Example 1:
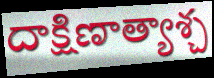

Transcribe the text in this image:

దాక్షిణాత్యాశ్చ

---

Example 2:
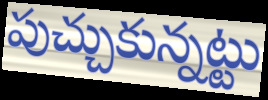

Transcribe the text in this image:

పుచ్చుకున్నట్టు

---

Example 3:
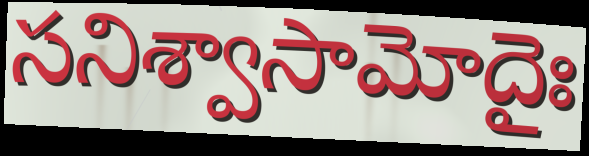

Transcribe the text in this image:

సనిశ్వాసామోదైః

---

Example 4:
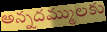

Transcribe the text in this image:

అన్నదమ్ములకు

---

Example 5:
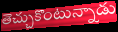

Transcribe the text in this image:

తెచ్చుకొంటున్నాడు